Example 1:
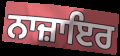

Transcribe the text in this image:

ਨਾਜ਼ਾਇਰ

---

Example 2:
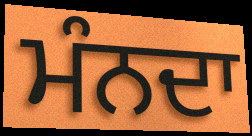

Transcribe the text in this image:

ਮੰਨਦਾ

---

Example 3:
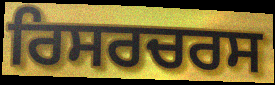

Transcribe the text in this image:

ਰਿਸਰਚਰਸ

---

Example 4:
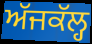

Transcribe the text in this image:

ਅੱਜਕੱਲ੍ਹ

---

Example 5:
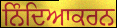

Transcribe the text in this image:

ਨਿੰਦਿਆਕਰਨ